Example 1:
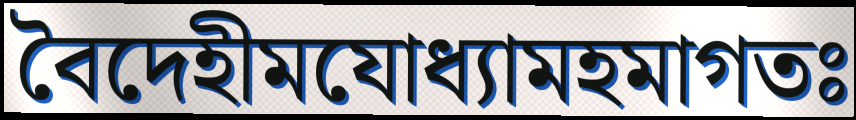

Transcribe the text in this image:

বৈদেহীমযোধ্যামহমাগতঃ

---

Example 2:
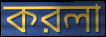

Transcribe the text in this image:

করলা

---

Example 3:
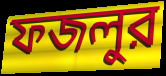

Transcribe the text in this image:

ফজলুর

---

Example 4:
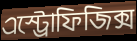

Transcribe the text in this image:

এস্ট্রোফিজিক্স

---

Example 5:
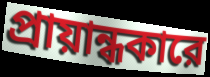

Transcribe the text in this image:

প্রায়ান্ধকারে